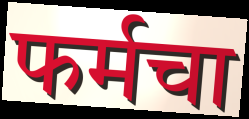
फर्मचा